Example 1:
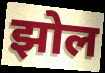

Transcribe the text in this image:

झोल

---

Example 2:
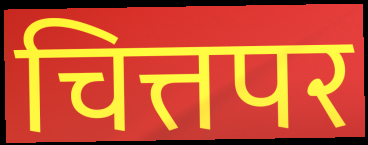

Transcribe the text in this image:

चित्तपर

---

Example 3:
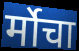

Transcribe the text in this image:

र्मोचा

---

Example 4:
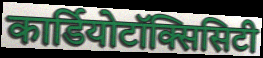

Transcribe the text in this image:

कार्डियोटॉक्सिसिटी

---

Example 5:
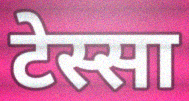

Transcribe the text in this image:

टेस्सा